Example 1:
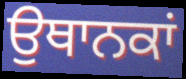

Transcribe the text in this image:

ਉਥਾਨਕਾਂ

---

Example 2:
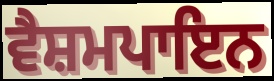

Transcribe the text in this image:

ਵੈਸ਼ਮਪਾਇਨ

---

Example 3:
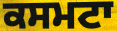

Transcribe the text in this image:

ਕਸਮਟਾ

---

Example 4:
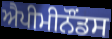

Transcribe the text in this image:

ਐਪੀਮੀਨੌਂਡਸ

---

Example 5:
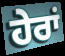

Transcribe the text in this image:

ਹੇਰਾਂ